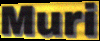
Muri